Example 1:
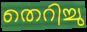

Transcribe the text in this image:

തെറിച്ചു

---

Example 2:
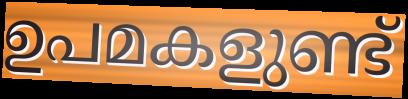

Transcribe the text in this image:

ഉപമകളുണ്ട്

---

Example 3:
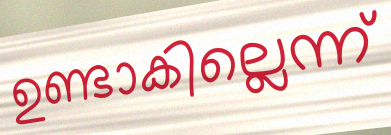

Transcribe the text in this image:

ഉണ്ടാകില്ലെന്ന്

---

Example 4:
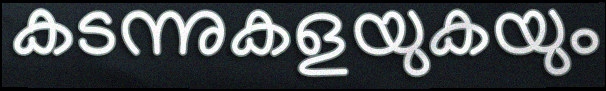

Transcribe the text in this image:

കടന്നുകളയുകയും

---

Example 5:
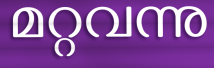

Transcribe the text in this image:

മറ്റവന്നു